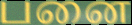
பனை